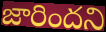
జారిందని